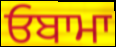
ਓਬਾਮਾ